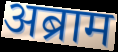
अब्राम